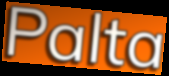
Palta